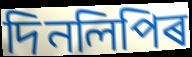
দিনলিপিৰ